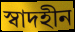
স্বাদহীন